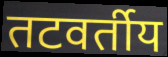
तटवर्तीय